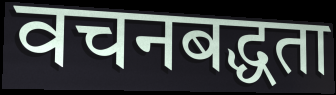
वचनबद्धता